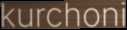
kurchoni